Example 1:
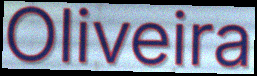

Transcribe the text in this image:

Oliveira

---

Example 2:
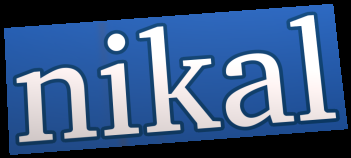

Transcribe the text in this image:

nikal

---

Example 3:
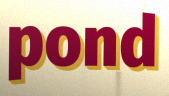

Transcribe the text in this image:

pond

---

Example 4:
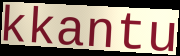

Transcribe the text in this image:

kkantu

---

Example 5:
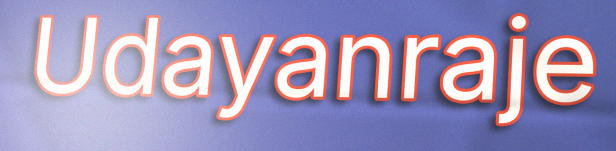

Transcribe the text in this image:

Udayanraje